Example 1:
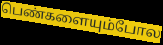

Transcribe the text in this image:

பெண்களையும்போல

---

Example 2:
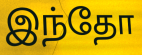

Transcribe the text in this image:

இந்தோ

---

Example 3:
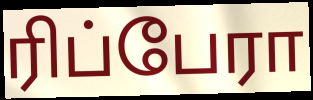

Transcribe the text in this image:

ரிப்பேரா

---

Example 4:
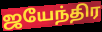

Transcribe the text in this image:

ஜயேந்திர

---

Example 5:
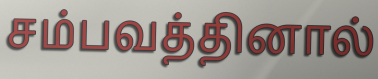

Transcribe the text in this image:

சம்பவத்தினால்